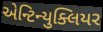
એન્ટિન્યુક્લિયર